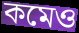
কমেও